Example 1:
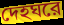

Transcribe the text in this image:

দেহঘরে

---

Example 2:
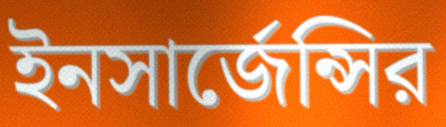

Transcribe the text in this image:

ইনসার্জেন্সির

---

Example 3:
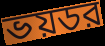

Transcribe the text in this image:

ভয়ডর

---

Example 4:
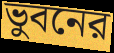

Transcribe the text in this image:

ভুবনের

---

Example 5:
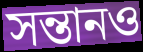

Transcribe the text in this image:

সন্তানও